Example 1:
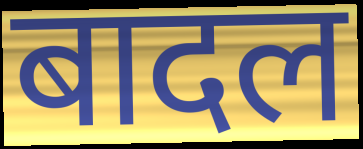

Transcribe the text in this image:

बादल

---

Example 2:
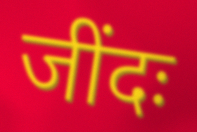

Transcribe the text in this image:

जींदः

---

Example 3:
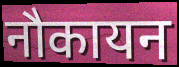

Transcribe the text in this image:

नौकायन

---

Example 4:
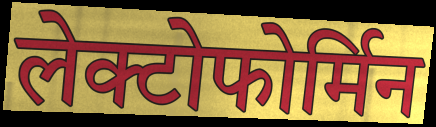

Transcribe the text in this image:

लेक्टोफोर्मिन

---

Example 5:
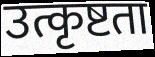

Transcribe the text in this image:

उत्कृष्टता